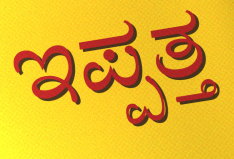
ಇಪ್ಪತ್ತ